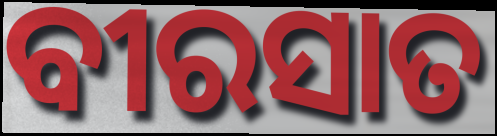
ବୀରସାତ